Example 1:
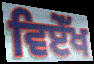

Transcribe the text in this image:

ਵਿਏੱਖ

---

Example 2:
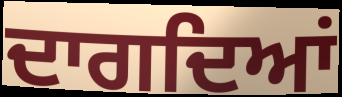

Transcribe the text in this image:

ਦਾਗਦਿਆਂ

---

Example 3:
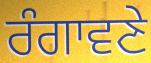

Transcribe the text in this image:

ਰੰਗਾਵਣੇ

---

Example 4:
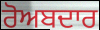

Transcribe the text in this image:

ਰੋਅਬਦਾਰ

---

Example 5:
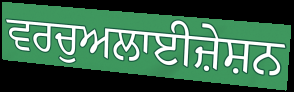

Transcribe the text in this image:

ਵਰਚੁਅਲਾਈਜ਼ੇਸ਼ਨ